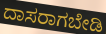
ದಾಸರಾಗಬೇಡಿ